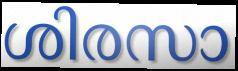
ശിരസാ